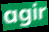
agir